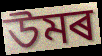
উমৰ